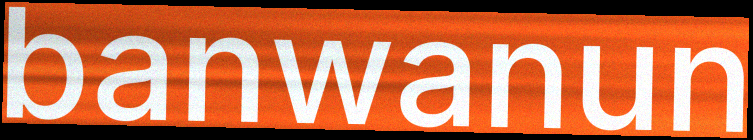
banwanun